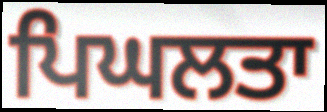
ਪਿਘਲਤਾ